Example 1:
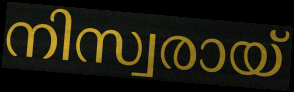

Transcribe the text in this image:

നിസ്വരായ്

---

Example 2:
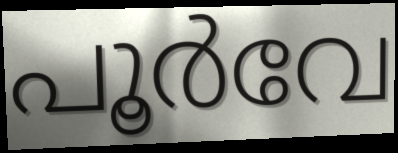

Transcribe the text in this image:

പൂർവേ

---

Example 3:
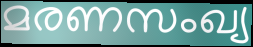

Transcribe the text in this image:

മരണസംഖ്യ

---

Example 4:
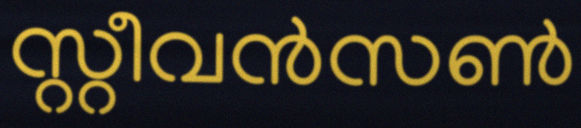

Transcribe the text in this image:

സ്റ്റീവൻസൺ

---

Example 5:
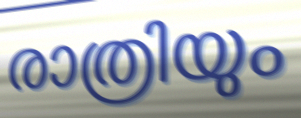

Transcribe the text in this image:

രാത്രിയും